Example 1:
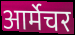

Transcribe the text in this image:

आर्मेचर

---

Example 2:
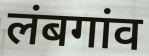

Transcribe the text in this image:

लंबगांव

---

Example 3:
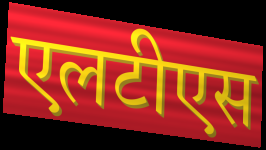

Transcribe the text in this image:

एलटीएस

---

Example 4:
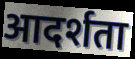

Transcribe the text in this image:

आदर्शता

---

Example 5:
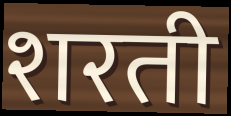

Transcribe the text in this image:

शरती